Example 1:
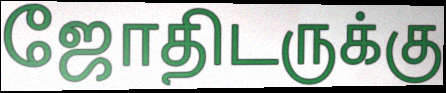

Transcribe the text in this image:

ஜோதிடருக்கு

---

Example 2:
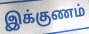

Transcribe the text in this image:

இக்குணம்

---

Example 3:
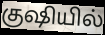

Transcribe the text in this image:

குஷியில்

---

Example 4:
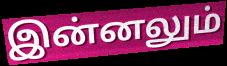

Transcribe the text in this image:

இன்னலும்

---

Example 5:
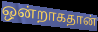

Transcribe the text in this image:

ஒன்றாகதான்